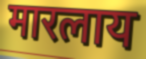
मारलाय